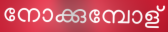
നോക്കുമ്പോള്